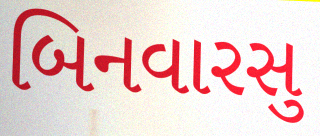
બિનવારસુ